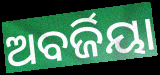
ଅବର୍ଜିୟା